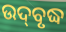
ଉଦ୍‌ବୃଦ୍ଧ